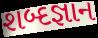
શબ્દજ્ઞાન